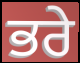
ਭਰੇ